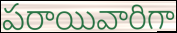
పరాయివారిగా